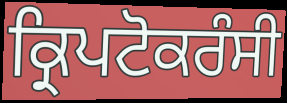
ਕ੍ਰਿਪਟੋਕਰੰਸੀ